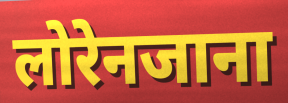
लोरेनजाना